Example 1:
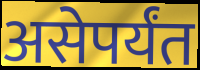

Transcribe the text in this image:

असेपर्यंत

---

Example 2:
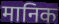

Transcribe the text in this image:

मानिक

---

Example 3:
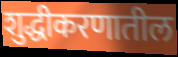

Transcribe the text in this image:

शुद्धीकरणातील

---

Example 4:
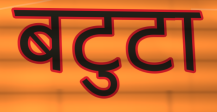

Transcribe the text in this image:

बटुटा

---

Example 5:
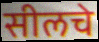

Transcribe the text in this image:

सीलचे